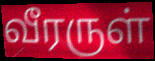
வீரருள்